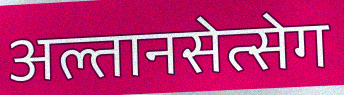
अल्तानसेत्सेग